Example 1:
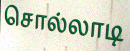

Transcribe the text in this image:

சொல்லாடி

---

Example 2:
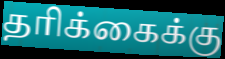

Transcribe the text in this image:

தரிக்கைக்கு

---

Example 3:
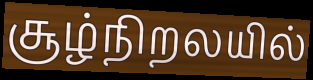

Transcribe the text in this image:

சூழ்நிறலயில்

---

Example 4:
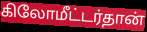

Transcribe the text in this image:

கிலோமீட்டர்தான்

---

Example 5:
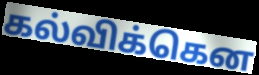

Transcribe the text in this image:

கல்விக்கென